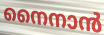
നൈനാൻ